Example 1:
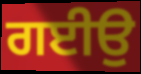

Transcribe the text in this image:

ਗਈਉ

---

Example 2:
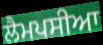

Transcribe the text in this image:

ਲੈਮਪਸੀਆ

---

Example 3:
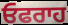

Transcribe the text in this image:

ਓਫਰਾਹ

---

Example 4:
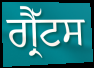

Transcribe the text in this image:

ਗ੍ਰੈੱਟਸ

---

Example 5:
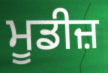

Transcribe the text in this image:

ਮੂਡੀਜ਼